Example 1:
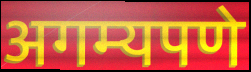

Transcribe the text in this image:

अगम्यपणे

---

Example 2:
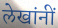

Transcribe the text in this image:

लेखांनीं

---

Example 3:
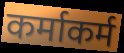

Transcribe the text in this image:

कर्माकर्म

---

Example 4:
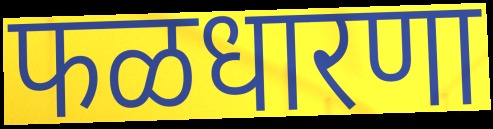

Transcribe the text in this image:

फळधारणा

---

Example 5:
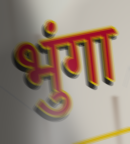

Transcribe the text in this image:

भुंगा